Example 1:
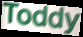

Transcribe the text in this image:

Toddy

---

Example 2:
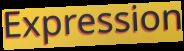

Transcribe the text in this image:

Expression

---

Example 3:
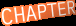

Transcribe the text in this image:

CHAPTER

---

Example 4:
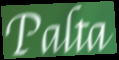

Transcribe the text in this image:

Palta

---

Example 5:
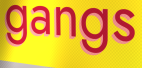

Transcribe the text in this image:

gangs